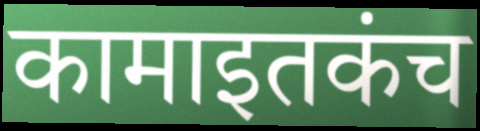
कामाइतकंच